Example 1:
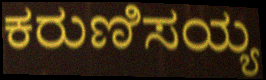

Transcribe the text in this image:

ಕರುಣಿಸಯ್ಯ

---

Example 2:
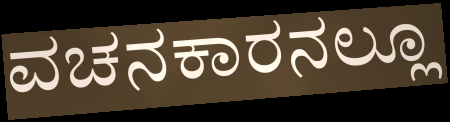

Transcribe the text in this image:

ವಚನಕಾರನಲ್ಲೂ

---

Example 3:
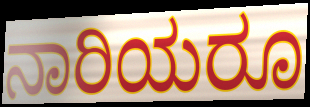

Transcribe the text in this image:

ನಾರಿಯರೂ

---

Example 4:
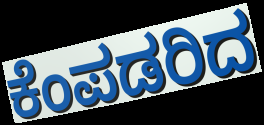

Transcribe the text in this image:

ಕೆಂಪಡರಿದ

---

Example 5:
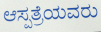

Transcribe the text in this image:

ಆಸ್ಪತ್ರೆಯವರು